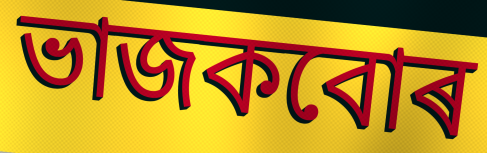
ভাজকবোৰ